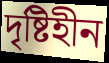
দৃষ্টিহীন